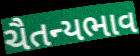
ચૈતન્યભાવ